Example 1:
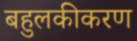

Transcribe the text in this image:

बहुलकीकरण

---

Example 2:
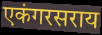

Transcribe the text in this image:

एकंगरसराय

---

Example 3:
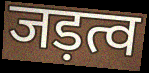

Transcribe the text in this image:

जड़त्व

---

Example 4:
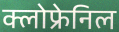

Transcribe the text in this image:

क्लोफ्रेनिल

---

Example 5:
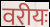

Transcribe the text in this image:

वरीयः